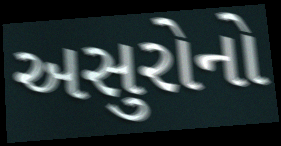
અસુરોનો